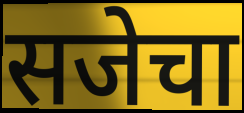
सजेचा